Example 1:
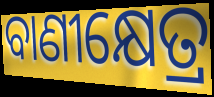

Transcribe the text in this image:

ବାଣୀକ୍ଷେତ୍ର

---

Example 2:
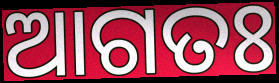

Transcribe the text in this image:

ଆଗତଃ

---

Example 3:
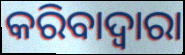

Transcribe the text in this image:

କରିବାଦ୍ବାରା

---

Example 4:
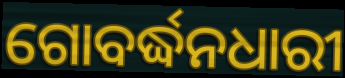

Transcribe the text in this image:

ଗୋବର୍ଦ୍ଧନଧାରୀ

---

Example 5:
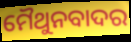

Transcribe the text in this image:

ମୈଥୁନବାଦର